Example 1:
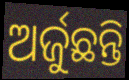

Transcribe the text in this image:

ଅର୍ଜୁଛନ୍ତି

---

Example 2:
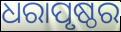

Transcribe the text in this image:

ଧରାପୃଷ୍ଠର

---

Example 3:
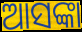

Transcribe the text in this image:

ଆସଙ୍କା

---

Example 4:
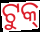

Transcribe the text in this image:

ଟୁକ୍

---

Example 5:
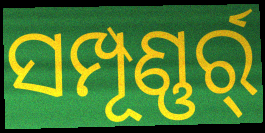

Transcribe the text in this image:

ସମ୍ପୂଣ୍ଣର୍ର୍